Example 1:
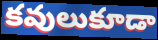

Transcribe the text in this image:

కవులుకూడా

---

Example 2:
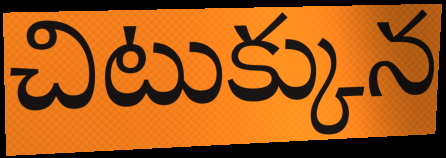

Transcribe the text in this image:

చిటుక్కున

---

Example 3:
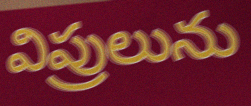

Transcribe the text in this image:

విప్రులును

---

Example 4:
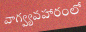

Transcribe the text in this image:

వాగ్వ్యవహారంలో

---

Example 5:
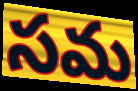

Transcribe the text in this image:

సమ